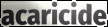
acaricide